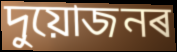
দুয়োজনৰ